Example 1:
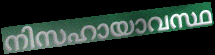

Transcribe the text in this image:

നിസഹായാവസ്ഥ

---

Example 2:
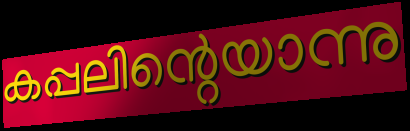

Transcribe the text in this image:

കപ്പലിന്റെയാന്നു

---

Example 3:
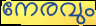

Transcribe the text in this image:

നേരവും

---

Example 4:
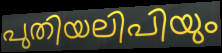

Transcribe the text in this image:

പുതിയലിപിയും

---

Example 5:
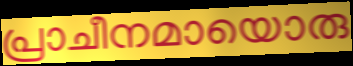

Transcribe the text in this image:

പ്രാചീനമായൊരു